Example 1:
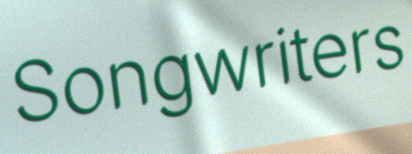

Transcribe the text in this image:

Songwriters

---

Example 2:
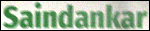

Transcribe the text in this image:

Saindankar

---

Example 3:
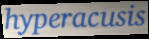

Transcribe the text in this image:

hyperacusis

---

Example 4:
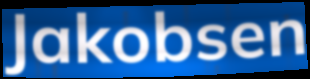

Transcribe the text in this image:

Jakobsen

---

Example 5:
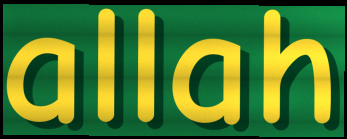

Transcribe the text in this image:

allah